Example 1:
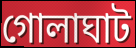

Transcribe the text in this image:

গোলাঘাট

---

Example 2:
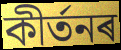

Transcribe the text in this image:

কীৰ্তনৰ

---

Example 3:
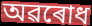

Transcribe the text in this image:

অৱৰোধ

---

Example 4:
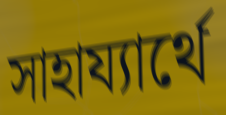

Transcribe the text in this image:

সাহায্যাৰ্থে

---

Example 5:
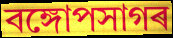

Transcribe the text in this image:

বঙ্গোপসাগৰ